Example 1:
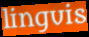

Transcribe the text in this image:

linguis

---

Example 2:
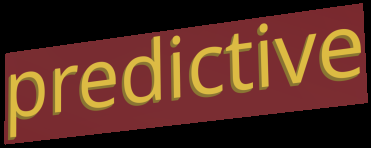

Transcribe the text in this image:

predictive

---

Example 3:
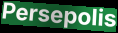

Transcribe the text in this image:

Persepolis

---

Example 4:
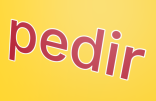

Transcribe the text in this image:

pedir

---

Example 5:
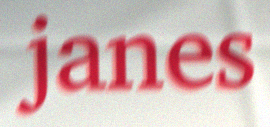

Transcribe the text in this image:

janes